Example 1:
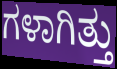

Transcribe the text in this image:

ಗಳಾಗಿತ್ತು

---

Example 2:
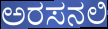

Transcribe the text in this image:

ಅರಸನಲಿ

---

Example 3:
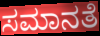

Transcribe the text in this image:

ಸಮಾನತೆ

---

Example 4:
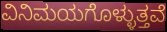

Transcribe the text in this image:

ವಿನಿಮಯಗೊಳ್ಳುತ್ತವೆ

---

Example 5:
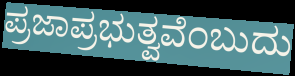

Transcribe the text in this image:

ಪ್ರಜಾಪ್ರಭುತ್ವವೆಂಬುದು